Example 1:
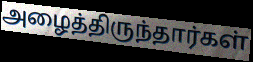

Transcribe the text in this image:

அழைத்திருந்தார்கள்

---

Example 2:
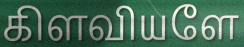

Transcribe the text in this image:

கிளவியளே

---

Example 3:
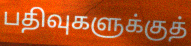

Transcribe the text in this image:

பதிவுகளுக்குத்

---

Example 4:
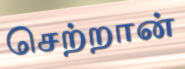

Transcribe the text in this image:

செற்றான்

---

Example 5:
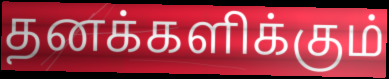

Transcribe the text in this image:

தனக்களிக்கும்